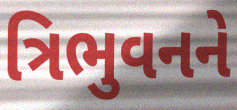
ત્રિભુવનને